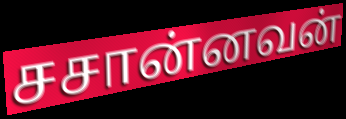
சசான்னவன்